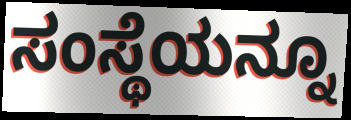
ಸಂಸ್ಥೆಯನ್ನೂ